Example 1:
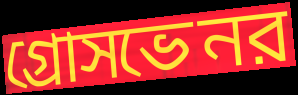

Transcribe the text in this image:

গ্রোসভেনর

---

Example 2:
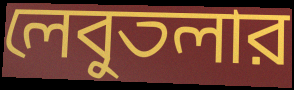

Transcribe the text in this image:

লেবুতলার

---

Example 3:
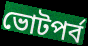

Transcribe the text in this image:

ভোটপর্ব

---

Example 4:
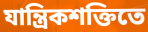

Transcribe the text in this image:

যান্ত্রিকশক্তিতে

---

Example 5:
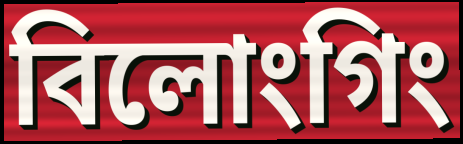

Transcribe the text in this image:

বিলোংগিং